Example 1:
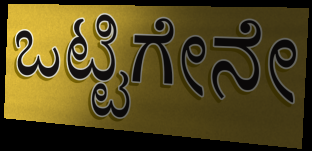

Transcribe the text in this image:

ಒಟ್ಟಿಗೇನೇ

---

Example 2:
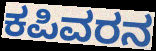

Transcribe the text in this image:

ಕಪಿವರನ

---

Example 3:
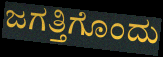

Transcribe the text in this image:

ಜಗತ್ತಿಗೊಂದು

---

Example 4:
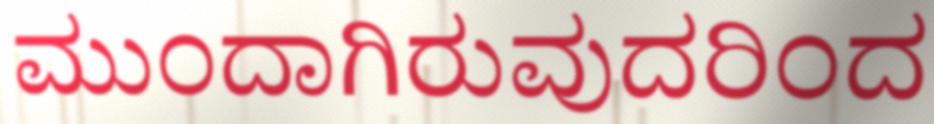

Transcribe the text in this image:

ಮುಂದಾಗಿರುವುದರಿಂದ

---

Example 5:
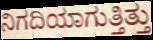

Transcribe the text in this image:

ನಿಗದಿಯಾಗುತ್ತಿತ್ತು